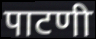
पाटणी